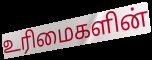
உரிமைகளின்